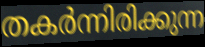
തകർന്നിരിക്കുന്ന